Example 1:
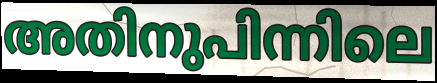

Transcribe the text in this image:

അതിനുപിന്നിലെ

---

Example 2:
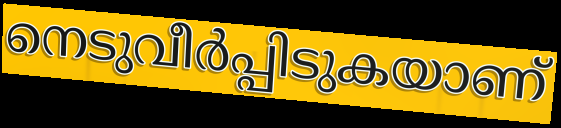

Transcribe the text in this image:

നെടുവീർപ്പിടുകയാണ്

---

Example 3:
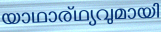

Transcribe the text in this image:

യാഥാര്ഥ്യവുമായി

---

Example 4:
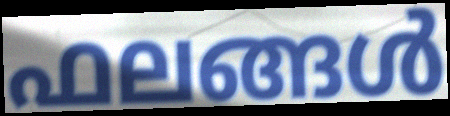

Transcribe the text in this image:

ഫലങ്ങൾ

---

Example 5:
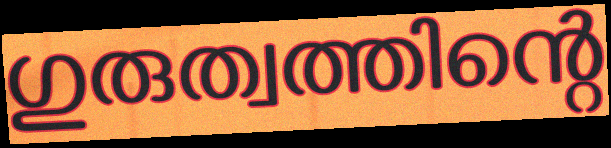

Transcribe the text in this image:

ഗുരുത്വത്തിന്റെ